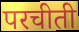
परचीती